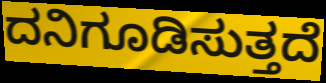
ದನಿಗೂಡಿಸುತ್ತದೆ